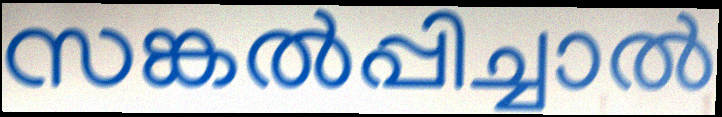
സങ്കൽപ്പിച്ചാൽ